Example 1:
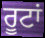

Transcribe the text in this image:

ਰੂਟਾਂ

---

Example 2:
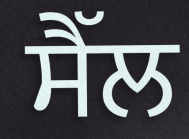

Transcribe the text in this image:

ਸੈੱਲ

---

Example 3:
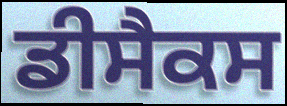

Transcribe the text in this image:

ਡੀਸੈਕਸ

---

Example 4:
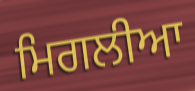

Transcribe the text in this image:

ਮਿਗਲੀਆ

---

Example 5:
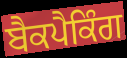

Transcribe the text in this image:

ਬੈਕਪੈਕਿੰਗ